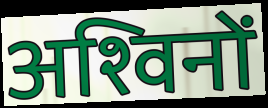
अश्विनों